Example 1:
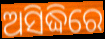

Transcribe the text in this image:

ଅସିଦ୍ଧିରେ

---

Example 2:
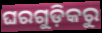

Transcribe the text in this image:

ଘରଗୁଡ଼ିକରୁ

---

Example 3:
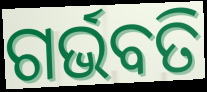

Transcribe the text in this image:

ଗର୍ଭବତି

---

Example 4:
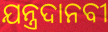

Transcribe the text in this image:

ଯନ୍ତ୍ରଦାନବୀ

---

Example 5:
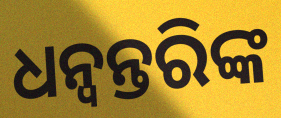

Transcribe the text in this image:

ଧନ୍ୱନ୍ତରିଙ୍କ